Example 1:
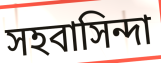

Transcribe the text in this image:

সহবাসিন্দা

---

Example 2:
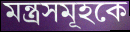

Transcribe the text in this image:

মন্ত্রসমূহকে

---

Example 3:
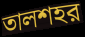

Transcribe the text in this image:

তালশহর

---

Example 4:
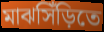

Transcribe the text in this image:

মাঝসিঁড়িতে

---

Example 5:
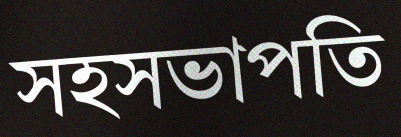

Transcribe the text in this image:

সহসভাপতি